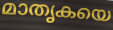
മാതൃകയെ